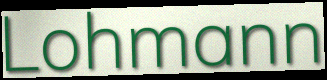
Lohmann